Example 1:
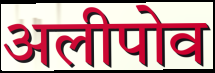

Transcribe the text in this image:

अलीपोव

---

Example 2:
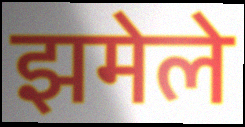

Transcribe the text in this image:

झमेले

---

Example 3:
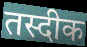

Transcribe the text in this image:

तस्दीक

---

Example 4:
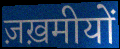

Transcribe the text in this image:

ज़ख़मीयों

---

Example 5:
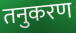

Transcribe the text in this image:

तनुकरण